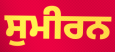
ਸੁਮੀਰਨ